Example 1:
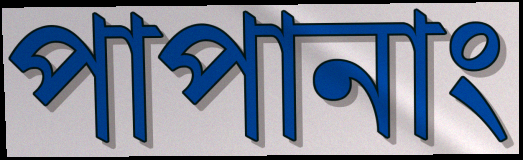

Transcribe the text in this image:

পাপানাং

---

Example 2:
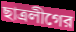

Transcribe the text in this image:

ছাত্রলীগের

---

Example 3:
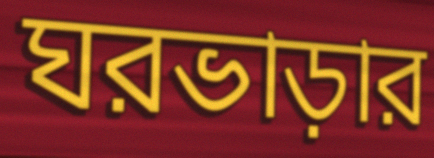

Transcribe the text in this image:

ঘরভাড়ার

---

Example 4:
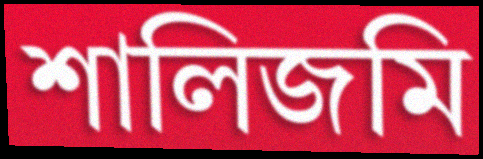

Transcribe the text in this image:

শালিজমি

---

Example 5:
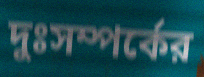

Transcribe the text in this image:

দুঃসম্পর্কের